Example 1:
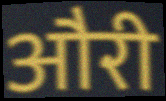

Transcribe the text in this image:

औरी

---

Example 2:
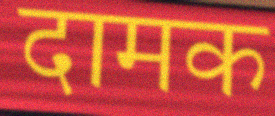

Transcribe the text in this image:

दामक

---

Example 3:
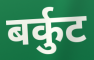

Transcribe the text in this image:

बर्कुट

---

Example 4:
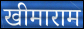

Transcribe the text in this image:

खीमाराम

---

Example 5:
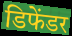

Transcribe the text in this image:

डिफेंडर